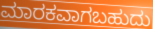
ಮಾರಕವಾಗಬಹುದು